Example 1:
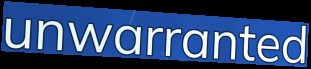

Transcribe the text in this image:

unwarranted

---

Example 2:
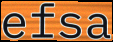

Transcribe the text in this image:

efsa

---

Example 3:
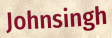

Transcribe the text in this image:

Johnsingh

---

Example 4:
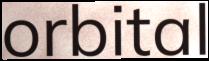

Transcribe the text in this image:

orbital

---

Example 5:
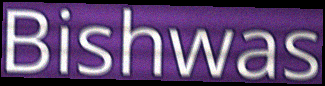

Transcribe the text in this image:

Bishwas